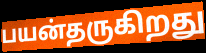
பயன்தருகிறது